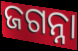
ଜଗନ୍ନା